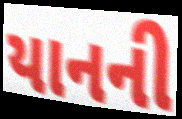
યાનની